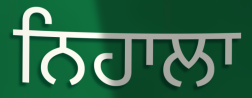
ਨਿਹਾਲਾ